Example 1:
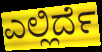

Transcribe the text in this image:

ಎಲ್ಲಿರ್ದೆ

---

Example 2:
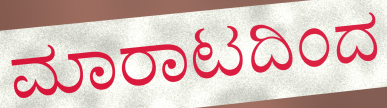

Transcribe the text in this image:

ಮಾರಾಟದಿಂದ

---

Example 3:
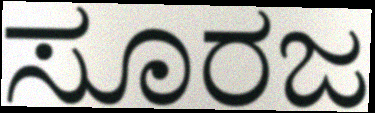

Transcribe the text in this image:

ಸೂರಜ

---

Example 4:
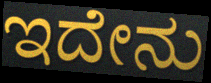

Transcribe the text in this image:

ಇದೇನು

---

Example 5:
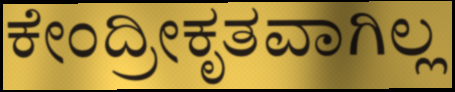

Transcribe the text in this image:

ಕೇಂದ್ರೀಕೃತವಾಗಿಲ್ಲ